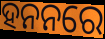
ହନନରେ